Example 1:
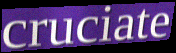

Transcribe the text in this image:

cruciate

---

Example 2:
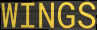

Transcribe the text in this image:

WINGS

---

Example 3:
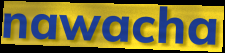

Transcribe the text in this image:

nawacha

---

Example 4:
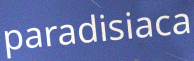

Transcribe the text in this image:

paradisiaca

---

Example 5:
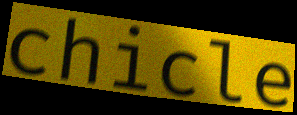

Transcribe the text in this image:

chicle